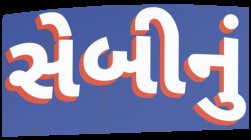
સેબીનું